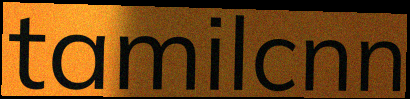
tamilcnn